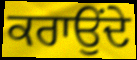
ਕਰਾਉੰਦੇ